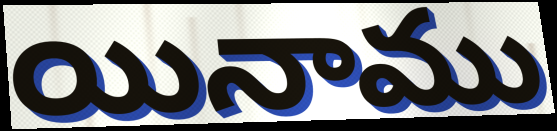
యినాము